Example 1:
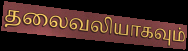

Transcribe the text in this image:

தலைவலியாகவும்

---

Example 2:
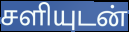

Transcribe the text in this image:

சளியுடன்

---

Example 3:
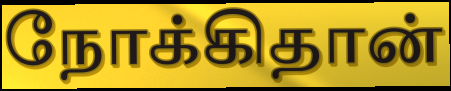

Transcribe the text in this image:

நோக்கிதான்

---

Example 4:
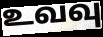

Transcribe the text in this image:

உவவு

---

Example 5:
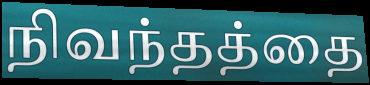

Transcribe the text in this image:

நிவந்தத்தை